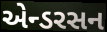
એન્ડરસન